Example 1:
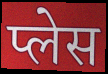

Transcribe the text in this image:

प्लेस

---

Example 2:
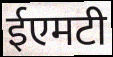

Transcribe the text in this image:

ईएमटी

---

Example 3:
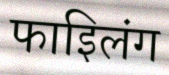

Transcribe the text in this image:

फाइिलंग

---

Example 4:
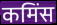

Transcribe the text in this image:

कमिंस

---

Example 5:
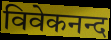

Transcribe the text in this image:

विवेकनन्द